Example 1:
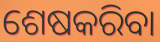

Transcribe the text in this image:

ଶେଷକରିବା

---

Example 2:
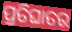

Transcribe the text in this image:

ପ୍ରତିଘାତର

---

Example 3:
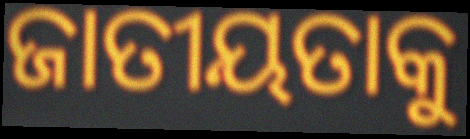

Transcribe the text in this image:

ଜାତୀୟତାକୁ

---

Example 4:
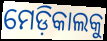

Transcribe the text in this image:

ମେଡ଼ିକାଲକୁ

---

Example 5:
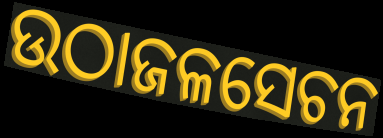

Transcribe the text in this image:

ଉଠାଜଳସେଚନ